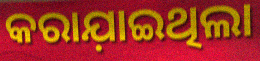
କରାଯ଼ାଇଥିଲା